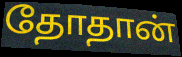
தோதான்